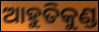
ଆହୁତିକୁଣ୍ଡ